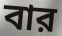
বার